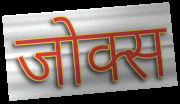
जोक्स